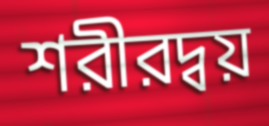
শরীরদ্বয়